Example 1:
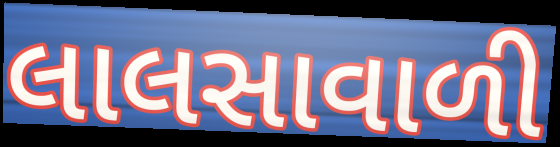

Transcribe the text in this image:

લાલસાવાળી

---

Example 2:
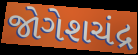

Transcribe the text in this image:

જોગેશચંદ્ર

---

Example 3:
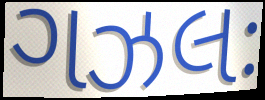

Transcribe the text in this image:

ગઝલઃ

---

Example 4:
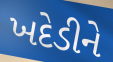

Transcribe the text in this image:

ખદેડીને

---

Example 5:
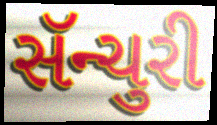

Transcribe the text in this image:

સૅન્ચુરી